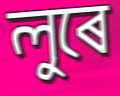
লুৰে